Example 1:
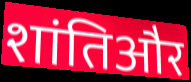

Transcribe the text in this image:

शांतिऔर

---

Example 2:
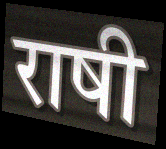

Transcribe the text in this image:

राषी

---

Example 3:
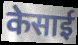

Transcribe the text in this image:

केसाई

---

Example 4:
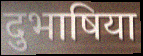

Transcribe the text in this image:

दुभाषिया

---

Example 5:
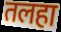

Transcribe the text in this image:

तलहा